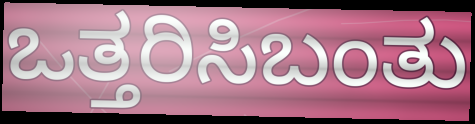
ಒತ್ತರಿಸಿಬಂತು